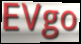
EVgo